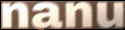
nanu